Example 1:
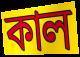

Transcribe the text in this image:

কাল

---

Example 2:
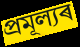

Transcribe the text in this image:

প্ৰমূল্যৰ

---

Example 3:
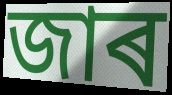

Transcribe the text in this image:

জাৰ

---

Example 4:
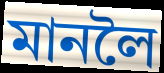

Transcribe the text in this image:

মানলৈ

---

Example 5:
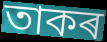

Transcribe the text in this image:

তাকৰ